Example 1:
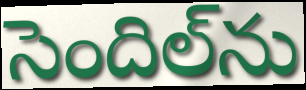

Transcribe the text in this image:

సెందిల్‌ను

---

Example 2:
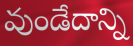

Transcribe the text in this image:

వుండేదాన్ని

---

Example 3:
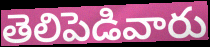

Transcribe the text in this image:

తెలిపెడివారు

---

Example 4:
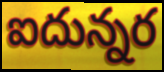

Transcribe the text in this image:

ఐదున్నర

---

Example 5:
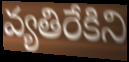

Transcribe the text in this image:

వ్యతిరేకిని